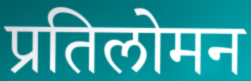
प्रतिलोमन